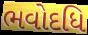
ભવોદધિ